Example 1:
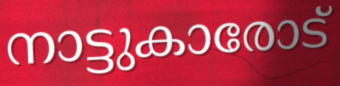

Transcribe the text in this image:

നാട്ടുകാരോട്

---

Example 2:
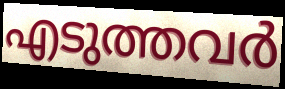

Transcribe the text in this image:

എടുത്തവർ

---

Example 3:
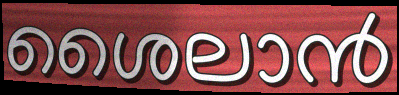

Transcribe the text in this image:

ശൈലാൻ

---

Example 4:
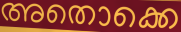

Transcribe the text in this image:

അതൊക്കെ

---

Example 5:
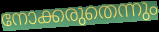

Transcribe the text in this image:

നോക്കരുതെന്നും